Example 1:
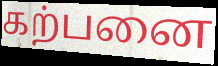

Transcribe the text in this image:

கற்பனை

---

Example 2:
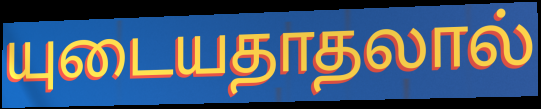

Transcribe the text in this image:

யுடையதாதலால்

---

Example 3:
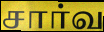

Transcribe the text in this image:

சார்வ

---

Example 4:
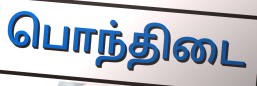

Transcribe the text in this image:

பொந்திடை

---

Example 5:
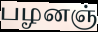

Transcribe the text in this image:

பழனஞ்